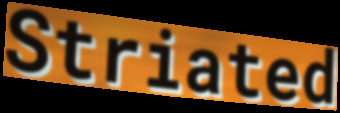
Striated